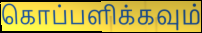
கொப்பளிக்கவும்